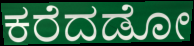
ಕರೆದಡೋ